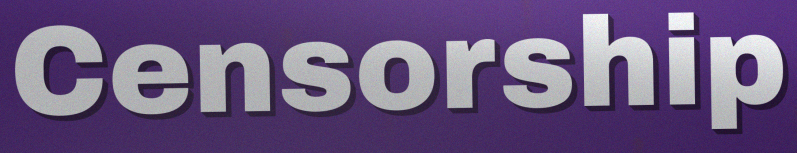
Censorship